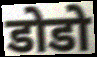
डोडो